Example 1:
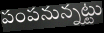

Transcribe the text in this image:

పంపనున్నట్టు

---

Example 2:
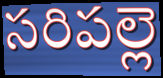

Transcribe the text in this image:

సరిపల్లె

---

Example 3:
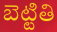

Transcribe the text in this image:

బెట్టితి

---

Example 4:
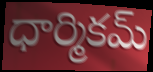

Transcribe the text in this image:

ధార్మికమ్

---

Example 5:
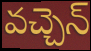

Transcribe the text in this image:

వచ్చెన్